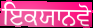
ਇਕਯਾਨਵੋ